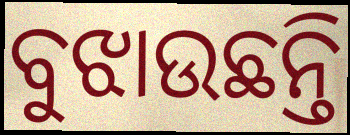
ବୁଝାଉଛନ୍ତି